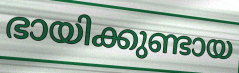
ഭായിക്കുണ്ടായ